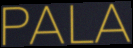
PALA